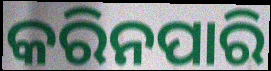
କରିନପାରି